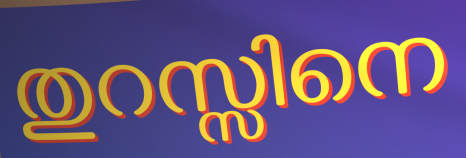
തുറസ്സിനെ